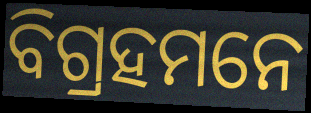
ବିଗ୍ରହମନେ